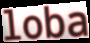
loba